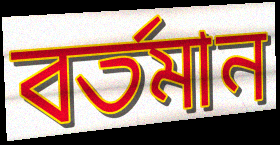
বৰ্তমান